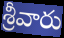
శ్రీవారు